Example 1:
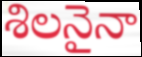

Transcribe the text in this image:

శిలనైనా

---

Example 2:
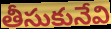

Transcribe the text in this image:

తీసుకునేవి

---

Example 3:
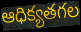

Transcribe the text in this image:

ఆధిక్యతగల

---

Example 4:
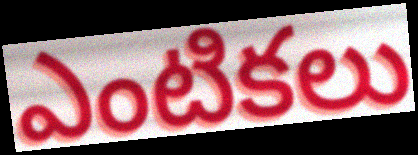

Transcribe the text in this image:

ఎంటికలు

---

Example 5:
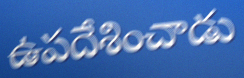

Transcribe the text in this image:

ఉపదేశించాడు